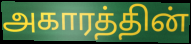
அகாரத்தின்